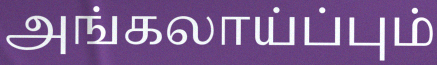
அங்கலாய்ப்பும்